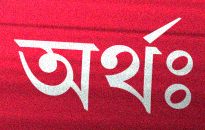
অৰ্থঃ